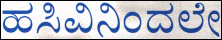
ಹಸಿವಿನಿಂದಲೇ